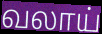
வலாய்